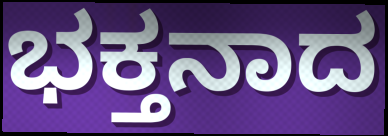
ಭಕ್ತನಾದ